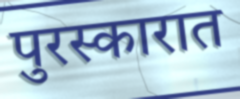
पुरस्कारात